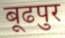
बूढपुर